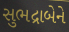
સુભદ્રાબેને